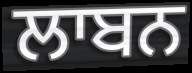
ਲਾਬਨ